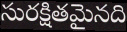
సురక్షితమైనది